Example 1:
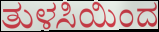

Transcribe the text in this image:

ತುಳಸಿಯಿಂದ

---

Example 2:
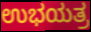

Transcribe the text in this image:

ಉಭಯತ್ರ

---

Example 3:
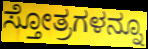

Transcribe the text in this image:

ಸ್ತೋತ್ರಗಳನ್ನೂ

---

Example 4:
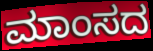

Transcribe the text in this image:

ಮಾಂಸದ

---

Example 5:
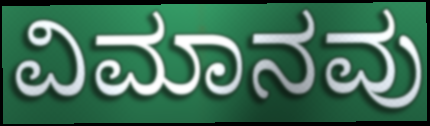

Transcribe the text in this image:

ವಿಮಾನವು